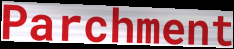
Parchment